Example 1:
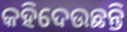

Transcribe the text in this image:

କହିଦେଉଛନ୍ତି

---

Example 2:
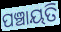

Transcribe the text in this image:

ପଞ୍ଚାୟତି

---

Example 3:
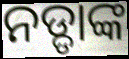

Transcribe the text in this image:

ନଡ୍ଡାଙ୍କ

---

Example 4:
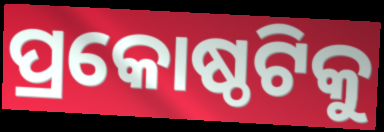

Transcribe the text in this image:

ପ୍ରକୋଷ୍ଠଟିକୁ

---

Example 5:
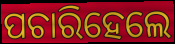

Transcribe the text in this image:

ପଚାରିହେଲେ